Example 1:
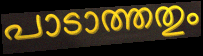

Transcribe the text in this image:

പാടാത്തതും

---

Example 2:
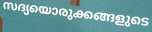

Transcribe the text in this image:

സദ്യയൊരുക്കങ്ങളുടെ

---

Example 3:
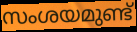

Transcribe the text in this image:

സംശയമുണ്ട്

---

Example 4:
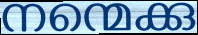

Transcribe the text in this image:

നന്മെക്കു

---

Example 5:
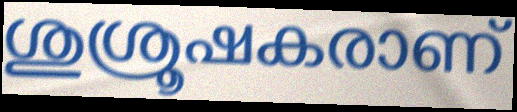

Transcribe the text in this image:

ശുശ്രൂഷകരാണ്